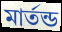
মার্তন্ড